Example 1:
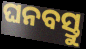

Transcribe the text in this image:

ଘନବସ୍ତୁ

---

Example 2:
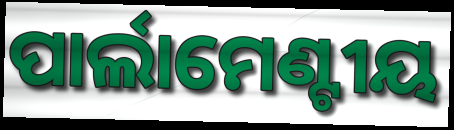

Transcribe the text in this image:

ପାର୍ଲାମେଣ୍ଟୀୟ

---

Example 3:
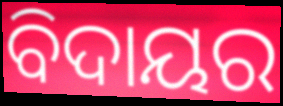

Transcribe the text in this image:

ବିଦାୟର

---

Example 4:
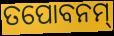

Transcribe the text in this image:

ତପୋବନମ୍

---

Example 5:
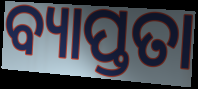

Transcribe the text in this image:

ବ୍ୟାପ୍ତତା